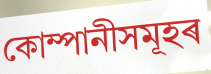
কোম্পানীসমূহৰ